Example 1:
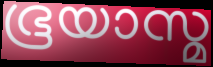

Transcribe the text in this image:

ഭൂയാസ്മ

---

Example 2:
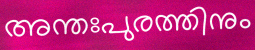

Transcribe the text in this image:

അന്തഃപുരത്തിനും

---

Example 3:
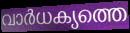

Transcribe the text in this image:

വാർധക്യത്തെ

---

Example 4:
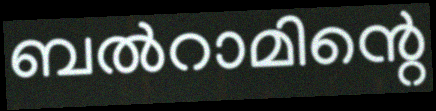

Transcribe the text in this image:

ബൽറാമിന്റെ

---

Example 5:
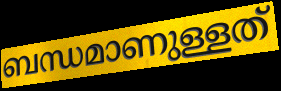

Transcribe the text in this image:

ബന്ധമാണുള്ളത്